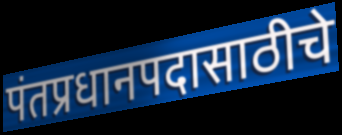
पंतप्रधानपदासाठीचे